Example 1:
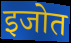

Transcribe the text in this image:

इजोत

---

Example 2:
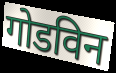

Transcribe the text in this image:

गोडविन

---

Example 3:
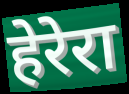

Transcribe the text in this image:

हेरेरा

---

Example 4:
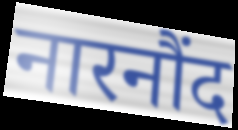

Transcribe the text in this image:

नारनौंद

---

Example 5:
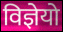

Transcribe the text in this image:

विज्ञेयो